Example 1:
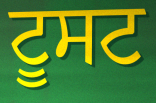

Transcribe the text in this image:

ਟੂਸਟ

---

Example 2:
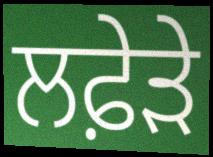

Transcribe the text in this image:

ਲਫ਼ੇੜੇ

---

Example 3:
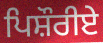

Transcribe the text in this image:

ਪਿਸ਼ੌਰੀਏ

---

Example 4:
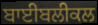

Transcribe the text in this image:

ਬਾਈਬਲੀਕਲ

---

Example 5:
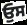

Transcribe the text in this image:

ਓੁਸ